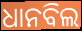
ଧାନବିଲ